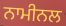
ਨਾਮੀਨਲ